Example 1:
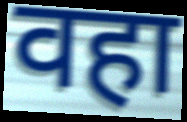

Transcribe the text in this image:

वहा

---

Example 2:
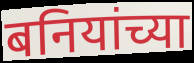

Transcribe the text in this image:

बनियांच्या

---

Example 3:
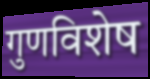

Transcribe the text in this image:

गुणविशेष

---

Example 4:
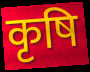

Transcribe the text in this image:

कृषि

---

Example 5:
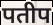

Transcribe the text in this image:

पतीप